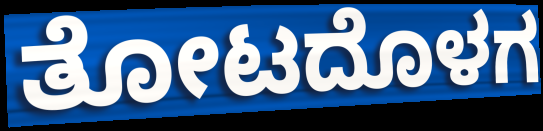
ತೋಟದೊಳಗ